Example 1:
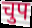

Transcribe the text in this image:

चुप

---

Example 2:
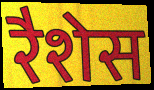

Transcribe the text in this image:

रैशेस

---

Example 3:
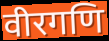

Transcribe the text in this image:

वीरगणि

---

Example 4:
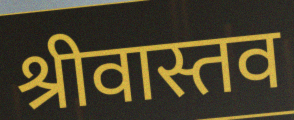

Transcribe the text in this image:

श्रीवास्तव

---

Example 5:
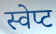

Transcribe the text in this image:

स्वेप्ट